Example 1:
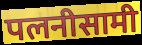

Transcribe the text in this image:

पलनीसामी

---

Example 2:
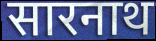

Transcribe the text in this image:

सारनाथ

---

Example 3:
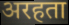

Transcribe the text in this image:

अरहता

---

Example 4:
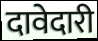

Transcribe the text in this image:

दावेदारी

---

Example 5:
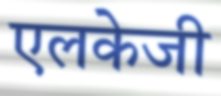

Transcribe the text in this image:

एलकेजी